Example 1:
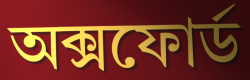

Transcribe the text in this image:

অক্সফোর্ড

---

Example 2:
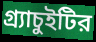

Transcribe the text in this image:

গ্র্যাচুইটির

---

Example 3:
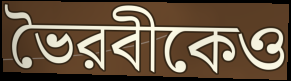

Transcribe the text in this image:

ভৈরবীকেও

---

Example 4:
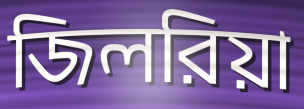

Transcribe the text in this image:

জিলরিয়া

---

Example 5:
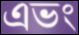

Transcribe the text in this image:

এভং